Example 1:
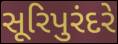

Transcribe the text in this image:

સૂરિપુરંદરે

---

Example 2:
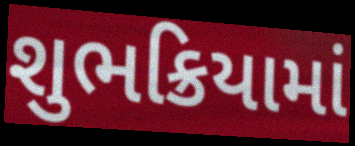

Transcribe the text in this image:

શુભક્રિયામાં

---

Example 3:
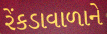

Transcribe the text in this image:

રેંકડાવાળાને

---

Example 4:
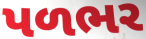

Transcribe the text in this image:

પળભર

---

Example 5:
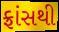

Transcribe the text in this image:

ફ્રાંસથી